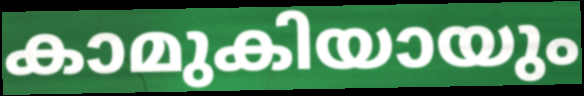
കാമുകിയായും